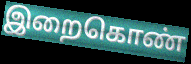
இறைகொண்